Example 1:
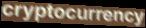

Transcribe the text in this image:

cryptocurrency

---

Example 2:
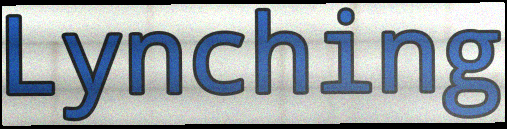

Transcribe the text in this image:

Lynching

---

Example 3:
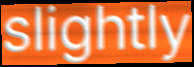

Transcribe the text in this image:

slightly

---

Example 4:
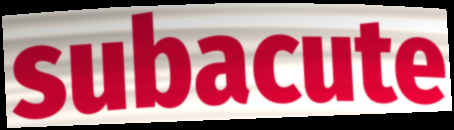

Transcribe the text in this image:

subacute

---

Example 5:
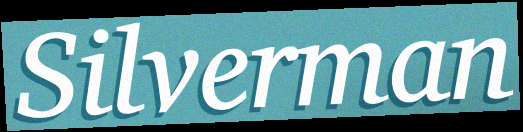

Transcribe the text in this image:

Silverman